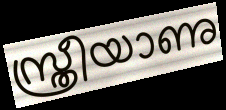
സ്ത്രീയാണു